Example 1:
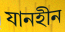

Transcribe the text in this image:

যানহীন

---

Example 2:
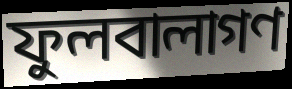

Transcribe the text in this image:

ফুলবালাগণ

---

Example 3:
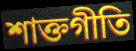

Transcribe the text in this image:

শাক্তগীতি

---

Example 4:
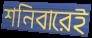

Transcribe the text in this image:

শনিবারেই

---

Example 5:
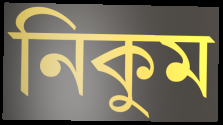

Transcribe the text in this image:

নিকুম